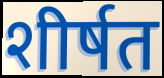
शीर्षत